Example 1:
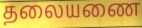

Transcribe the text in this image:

தலையணை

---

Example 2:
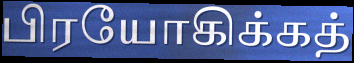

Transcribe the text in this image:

பிரயோகிக்கத்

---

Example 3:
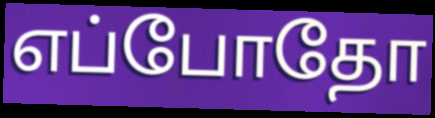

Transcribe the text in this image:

எப்போதோ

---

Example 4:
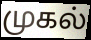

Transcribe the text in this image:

முகல்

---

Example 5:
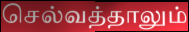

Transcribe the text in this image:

செல்வத்தாலும்